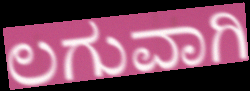
ಲಗುವಾಗಿ